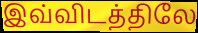
இவ்விடத்திலே